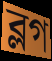
ব্লগ